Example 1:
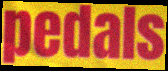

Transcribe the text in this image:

pedals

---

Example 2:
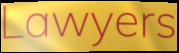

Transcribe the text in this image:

Lawyers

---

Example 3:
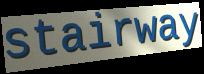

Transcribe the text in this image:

stairway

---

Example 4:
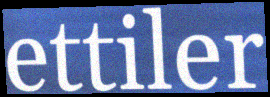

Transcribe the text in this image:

ettiler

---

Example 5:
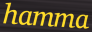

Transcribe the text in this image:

hamma